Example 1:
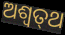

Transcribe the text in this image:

ଅଶ୍ଵତ୍‌ଥ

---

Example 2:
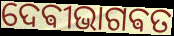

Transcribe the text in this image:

ଦେଵୀଭାଗଵତ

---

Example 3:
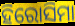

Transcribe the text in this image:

ହିରୋସିମା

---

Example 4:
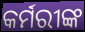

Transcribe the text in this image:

କର୍ମରୀଙ୍କ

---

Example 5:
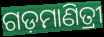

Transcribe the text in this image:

ଗଡ଼ମାଣିତ୍ରୀ